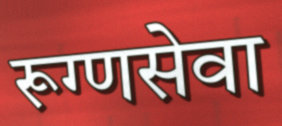
रूग्णसेवा